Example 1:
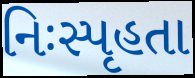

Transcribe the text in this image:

નિઃસ્પૃહતા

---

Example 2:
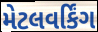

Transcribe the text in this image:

મેટલવર્કિંગ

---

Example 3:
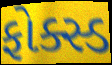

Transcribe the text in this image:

ફોક્સ્ડ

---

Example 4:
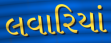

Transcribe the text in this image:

લવારિયાં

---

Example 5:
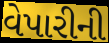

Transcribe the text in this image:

વેપારીની